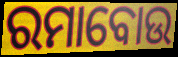
ରମାବୋଉ